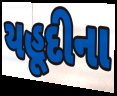
યહૂદીના